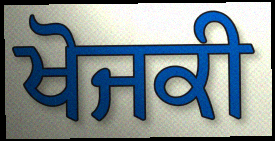
ਖੋਜਕੀ